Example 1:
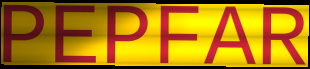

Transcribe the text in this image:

PEPFAR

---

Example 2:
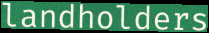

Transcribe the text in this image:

landholders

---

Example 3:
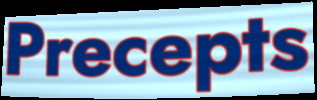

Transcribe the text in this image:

Precepts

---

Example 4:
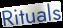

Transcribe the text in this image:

Rituals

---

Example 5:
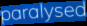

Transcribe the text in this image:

paralysed